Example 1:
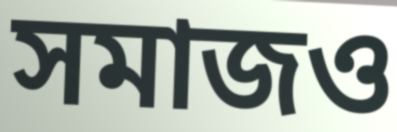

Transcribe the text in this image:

সমাজও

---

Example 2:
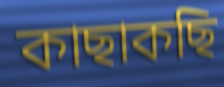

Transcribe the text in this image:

কাছাকছি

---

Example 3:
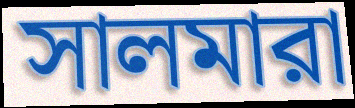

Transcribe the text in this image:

সালমারা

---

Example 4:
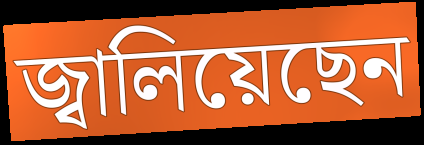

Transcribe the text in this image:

জ্বালিয়েছেন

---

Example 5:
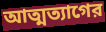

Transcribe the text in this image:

আত্মত্যাগের